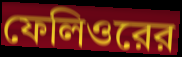
ফেলিওরের